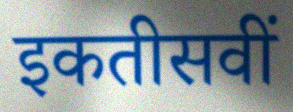
इकतीसवीं